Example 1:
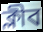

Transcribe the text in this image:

ক্লীব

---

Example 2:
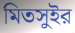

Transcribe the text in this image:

মিতসুইর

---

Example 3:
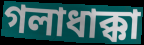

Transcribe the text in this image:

গলাধাক্কা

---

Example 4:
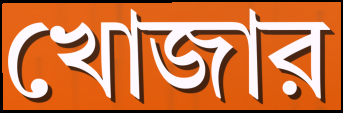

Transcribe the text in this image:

খোজার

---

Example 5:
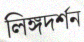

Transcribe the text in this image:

লিঙ্গদর্শন